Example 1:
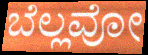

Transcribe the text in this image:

ಬೆಲ್ಲವೋ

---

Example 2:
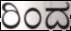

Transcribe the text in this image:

ರಿಂದ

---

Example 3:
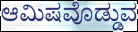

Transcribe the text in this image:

ಆಮಿಷವೊಡ್ಡುವ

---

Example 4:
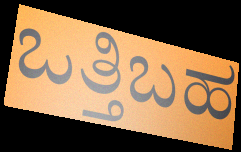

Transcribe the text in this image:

ಒತ್ತಿಬಹ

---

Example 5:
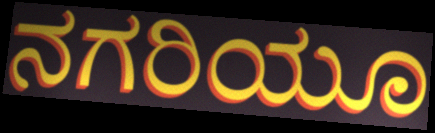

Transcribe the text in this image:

ನಗರಿಯೂ